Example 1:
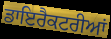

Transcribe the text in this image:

ਡਾਇਰੈਕਟਰੀਆਂ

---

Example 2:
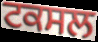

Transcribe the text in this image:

ਟਕਸਲ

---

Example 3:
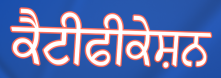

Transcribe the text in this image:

ਕੈਟੀਫੀਕੇਸ਼ਨ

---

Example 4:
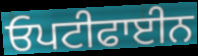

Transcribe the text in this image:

ਓਪਟੀਫਾਈਨ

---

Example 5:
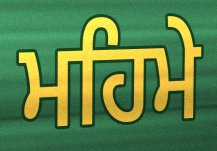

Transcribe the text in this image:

ਮਹਿਮੇ